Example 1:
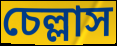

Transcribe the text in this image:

চেল্লাস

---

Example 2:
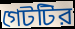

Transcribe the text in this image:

গেটটির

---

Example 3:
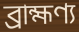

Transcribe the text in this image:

ব্রাহ্মণ্য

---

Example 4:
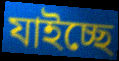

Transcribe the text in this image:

যাইচ্ছে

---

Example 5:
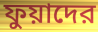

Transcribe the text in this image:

ফুয়াদের